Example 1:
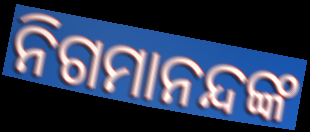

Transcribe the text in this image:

ନିଗମାନନ୍ଦଙ୍କ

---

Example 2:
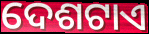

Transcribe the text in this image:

ଦେଶଟାଏ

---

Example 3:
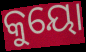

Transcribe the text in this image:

କୁୟୋ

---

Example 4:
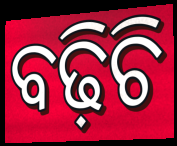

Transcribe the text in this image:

ବଢ଼ିଚି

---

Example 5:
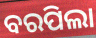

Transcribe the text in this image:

ବରପିଲା